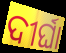
ଦୀର୍ଘା